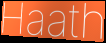
Haath